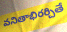
వనితాభిరర్చితే